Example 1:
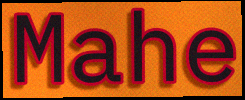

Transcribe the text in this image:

Mahe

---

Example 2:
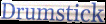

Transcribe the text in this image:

Drumstick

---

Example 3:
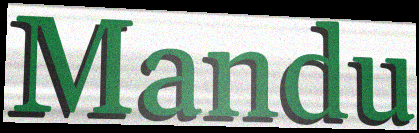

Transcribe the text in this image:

Mandu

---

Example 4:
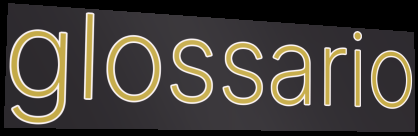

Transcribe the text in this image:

glossario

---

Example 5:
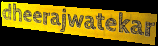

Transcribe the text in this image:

dheerajwatekar